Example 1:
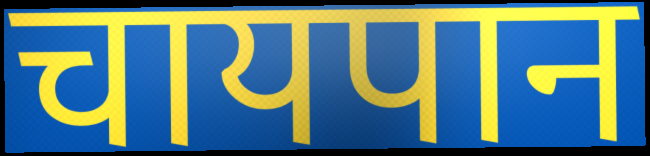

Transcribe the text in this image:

चायपान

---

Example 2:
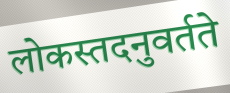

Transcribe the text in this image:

लोकस्तदनुवर्तते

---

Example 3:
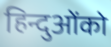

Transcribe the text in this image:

हिन्दुओंको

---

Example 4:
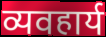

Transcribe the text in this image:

व्यवहार्य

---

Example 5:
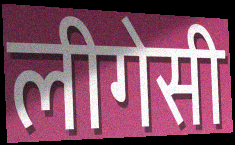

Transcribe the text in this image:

लीगेसी